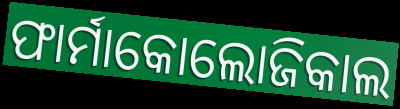
ଫାର୍ମାକୋଲୋଜିକାଲ